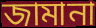
জামানা